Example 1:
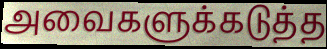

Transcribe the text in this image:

அவைகளுக்கடுத்த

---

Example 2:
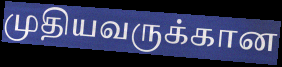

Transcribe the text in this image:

முதியவருக்கான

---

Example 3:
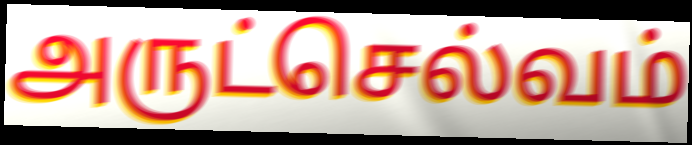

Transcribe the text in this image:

அருட்செல்வம்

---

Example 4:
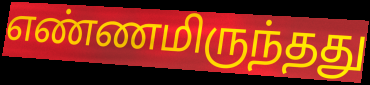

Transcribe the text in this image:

எண்ணமிருந்தது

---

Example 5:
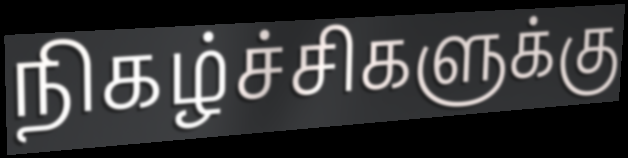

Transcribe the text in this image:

நிகழ்ச்சிகளுக்கு